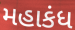
મહાકંધ